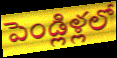
పెండ్లిళ్లలో